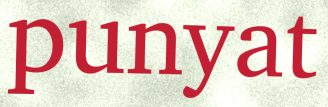
punyat